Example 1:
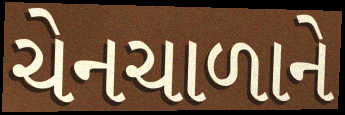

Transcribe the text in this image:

ચેનચાળાને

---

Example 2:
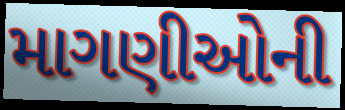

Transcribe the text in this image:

માગણીઓની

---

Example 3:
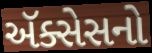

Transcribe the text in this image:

ઍક્સેસનો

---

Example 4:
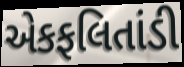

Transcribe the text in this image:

એકફલિતાંડી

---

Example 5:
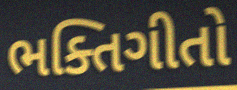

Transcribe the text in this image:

ભક્તિગીતો